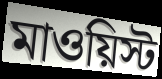
মাওয়িস্ট